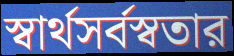
স্বার্থসর্বস্বতার